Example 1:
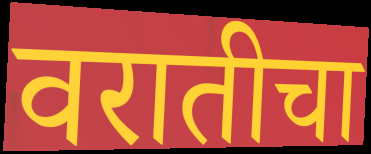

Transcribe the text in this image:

वरातीचा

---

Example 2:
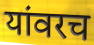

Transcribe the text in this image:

यांवरच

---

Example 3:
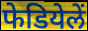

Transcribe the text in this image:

फेडियेलें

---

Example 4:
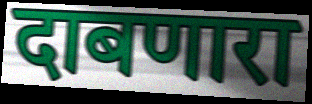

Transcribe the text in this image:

दाबणारा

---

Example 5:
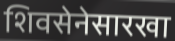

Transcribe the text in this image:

शिवसेनेसारखा